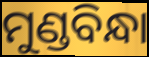
ମୁଣ୍ଡବିନ୍ଧା